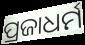
ପ୍ରଜାଧର୍ମ